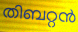
തിബറ്റൻ